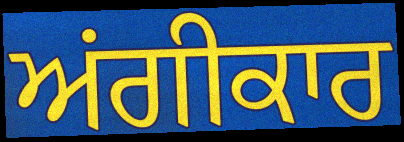
ਅਂਗੀਕਾਰ